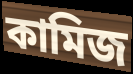
কামিজ